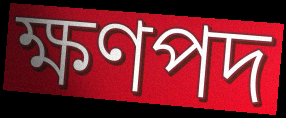
ক্ষণপদ